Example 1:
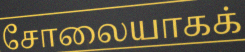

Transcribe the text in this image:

சோலையாகக்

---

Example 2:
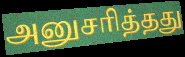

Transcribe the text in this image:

அனுசரித்தது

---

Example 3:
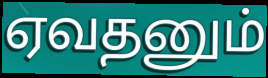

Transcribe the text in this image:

ஏவதனும்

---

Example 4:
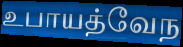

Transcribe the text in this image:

உபாயத்வேந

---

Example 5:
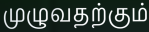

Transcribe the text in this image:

முழுவதற்கும்